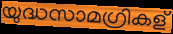
യുദ്ധസാമഗ്രികള്